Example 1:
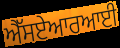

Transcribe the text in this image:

ਐੱਸਏਆਰਆਈ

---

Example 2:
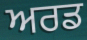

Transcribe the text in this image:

ਅਰਡ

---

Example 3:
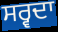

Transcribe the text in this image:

ਸਰ੍ਵਦਾ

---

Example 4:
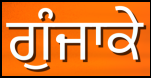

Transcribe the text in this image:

ਗੁੰਜਾਕੇ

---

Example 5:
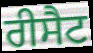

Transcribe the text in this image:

ਰੀਸੈਟ